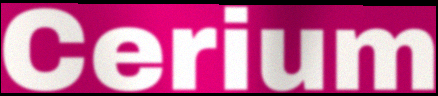
Cerium